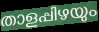
താളപ്പിഴയും